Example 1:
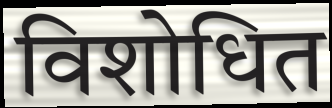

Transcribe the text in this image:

विशोधित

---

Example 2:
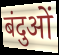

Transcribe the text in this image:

बंदुओं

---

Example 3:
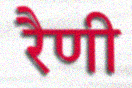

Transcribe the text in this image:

रैणी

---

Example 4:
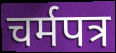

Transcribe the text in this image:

चर्मपत्र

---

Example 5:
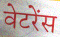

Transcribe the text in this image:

वेटरेंस